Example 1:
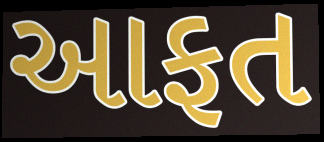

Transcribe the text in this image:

આફત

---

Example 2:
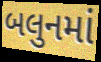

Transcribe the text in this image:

બલુનમાં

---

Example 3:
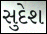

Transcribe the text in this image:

સુદેશ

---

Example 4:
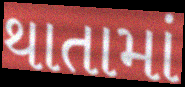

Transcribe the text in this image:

થાતામાં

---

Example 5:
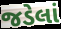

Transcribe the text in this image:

જડેલાં